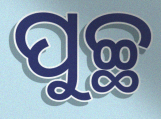
ପୁଚ୍ଛ